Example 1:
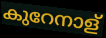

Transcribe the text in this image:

കുറേനാള്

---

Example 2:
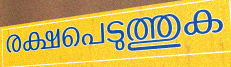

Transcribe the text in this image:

രക്ഷപെടുത്തുക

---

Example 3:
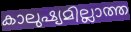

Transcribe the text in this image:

കാലുഷ്യമില്ലാത്ത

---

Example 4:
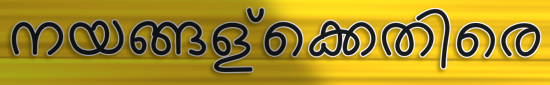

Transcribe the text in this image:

നയങ്ങള്ക്കെതിരെ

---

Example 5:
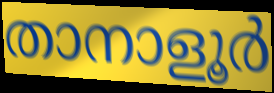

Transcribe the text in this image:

താനാളൂർ